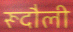
रूदौली